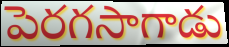
పెరగసాగాడు